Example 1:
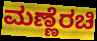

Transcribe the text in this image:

ಮಣ್ಣೆರಚಿ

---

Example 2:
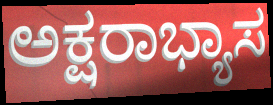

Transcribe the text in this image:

ಅಕ್ಷರಾಭ್ಯಾಸ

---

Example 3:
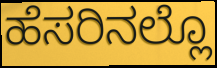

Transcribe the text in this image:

ಹೆಸರಿನಲ್ಲೊ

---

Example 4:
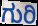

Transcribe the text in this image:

ಗುರಿ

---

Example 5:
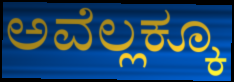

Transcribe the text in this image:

ಅವೆಲ್ಲಕ್ಕೂ